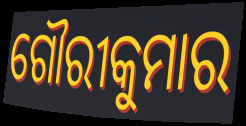
ଗୌରୀକୁମାର